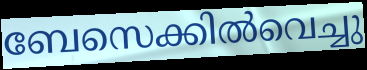
ബേസെക്കിൽവെച്ചു